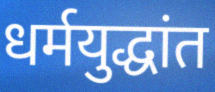
धर्मयुद्धांत